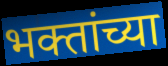
भक्तांच्या